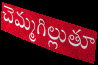
చెమ్మగిల్లుతూ